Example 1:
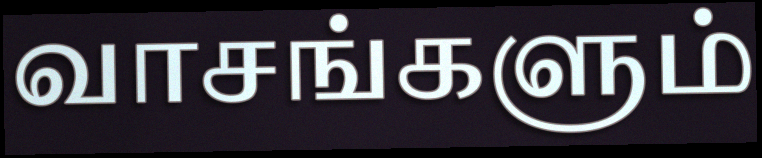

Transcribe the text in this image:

வாசங்களும்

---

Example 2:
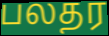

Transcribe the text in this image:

பலதர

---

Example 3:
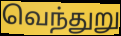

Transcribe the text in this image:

வெந்துறு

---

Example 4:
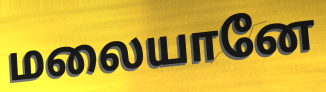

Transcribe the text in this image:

மலையானே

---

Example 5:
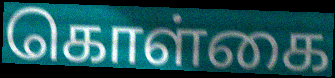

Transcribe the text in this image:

கொள்கை